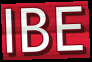
IBE